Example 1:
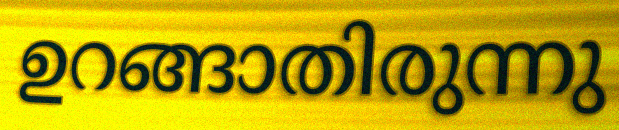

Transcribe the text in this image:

ഉറങ്ങാതിരുന്നു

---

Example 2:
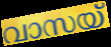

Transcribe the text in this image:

വാസയ്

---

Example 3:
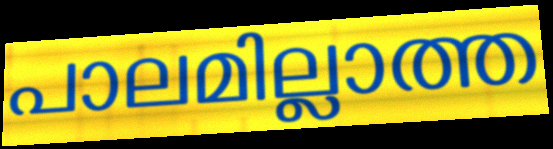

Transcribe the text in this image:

പാലമില്ലാത്ത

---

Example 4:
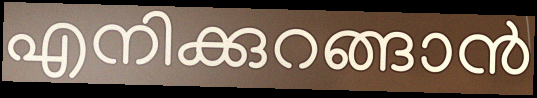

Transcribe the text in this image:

എനിക്കുറങ്ങാൻ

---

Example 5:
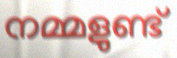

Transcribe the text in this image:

നമ്മളുണ്ട്